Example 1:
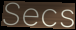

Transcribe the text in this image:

Secs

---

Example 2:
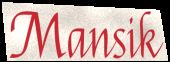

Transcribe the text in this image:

Mansik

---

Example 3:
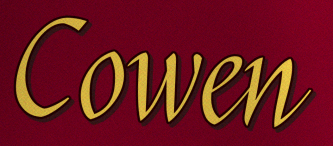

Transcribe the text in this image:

Cowen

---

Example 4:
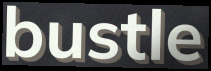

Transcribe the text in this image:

bustle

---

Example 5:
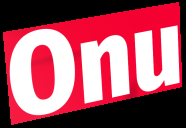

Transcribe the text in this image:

Onu